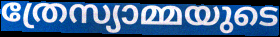
ത്രേസ്യാമ്മയുടെ